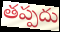
తప్పదు